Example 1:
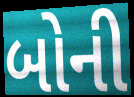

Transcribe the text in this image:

બોની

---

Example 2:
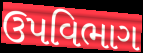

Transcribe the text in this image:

ઉપવિભાગ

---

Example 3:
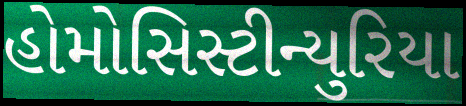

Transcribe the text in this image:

હોમોસિસ્ટીન્યુરિયા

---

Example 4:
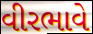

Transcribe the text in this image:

વીરભાવે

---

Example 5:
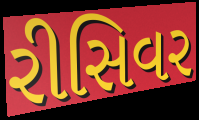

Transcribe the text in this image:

રીસિવર